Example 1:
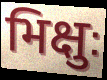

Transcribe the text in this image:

भिक्षुः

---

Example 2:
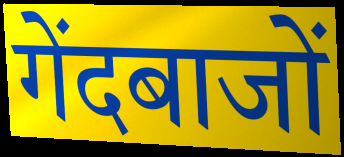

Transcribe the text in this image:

गेंदबाजों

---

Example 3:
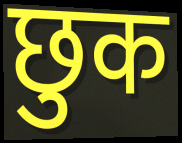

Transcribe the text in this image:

छुक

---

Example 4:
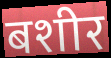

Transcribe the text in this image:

बशीर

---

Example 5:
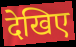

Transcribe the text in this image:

देखिए